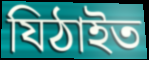
যিঠাইত